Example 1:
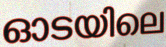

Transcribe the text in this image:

ഓടയിലെ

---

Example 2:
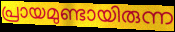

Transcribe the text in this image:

പ്രായമുണ്ടായിരുന്ന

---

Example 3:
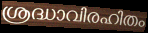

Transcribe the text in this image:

ശ്രദ്ധാവിരഹിതം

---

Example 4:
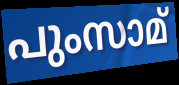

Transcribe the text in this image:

പുംസാമ്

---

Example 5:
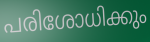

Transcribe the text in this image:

പരിശോധിക്കും